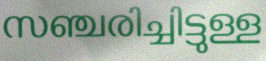
സഞ്ചരിച്ചിട്ടുള്ള